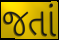
જતાં